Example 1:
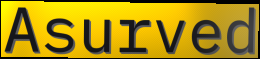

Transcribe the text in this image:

Asurved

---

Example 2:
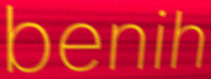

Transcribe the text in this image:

benih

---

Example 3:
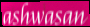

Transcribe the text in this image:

ashwasan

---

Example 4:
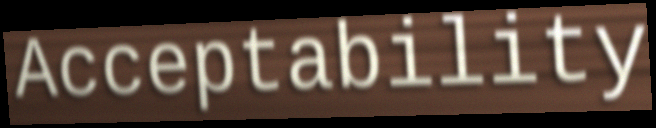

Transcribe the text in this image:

Acceptability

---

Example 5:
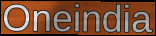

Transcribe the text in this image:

Oneindia